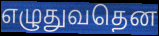
எழுதுவதென